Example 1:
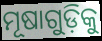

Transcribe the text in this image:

ମୂଷାଗୁଡ଼ିକୁ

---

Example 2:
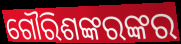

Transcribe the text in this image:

ଗୌରିଶଙ୍କରଙ୍କର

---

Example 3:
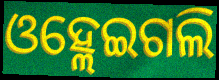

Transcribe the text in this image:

ଓହ୍ଲେଇଗଲି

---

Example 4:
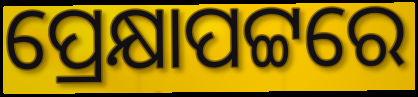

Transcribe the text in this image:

ପ୍ରେକ୍ଷାପଟ୍ଟରେ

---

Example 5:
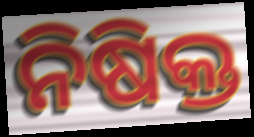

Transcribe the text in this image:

ନିଷିକ୍ତ